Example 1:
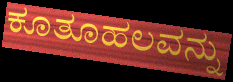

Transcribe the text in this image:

ಕೂತೂಹಲವನ್ನು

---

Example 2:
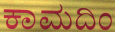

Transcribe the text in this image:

ಕಾಮದಿಂ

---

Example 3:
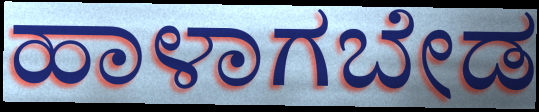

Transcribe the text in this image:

ಹಾಳಾಗಬೇಡ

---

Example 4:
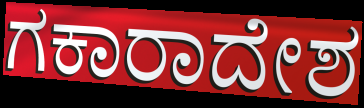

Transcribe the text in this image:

ಗಕಾರಾದೇಶ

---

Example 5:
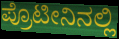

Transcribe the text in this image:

ಪ್ರೊಟೀನಿನಲ್ಲಿ